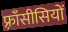
फ़्राँसीसियों